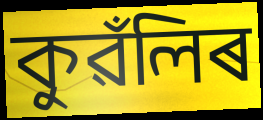
কুৱঁলিৰ